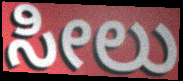
ಸೀಲು